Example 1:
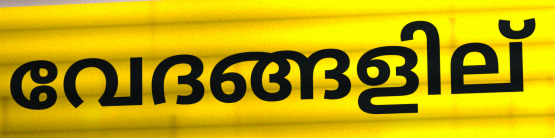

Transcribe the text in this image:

വേദങ്ങളില്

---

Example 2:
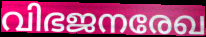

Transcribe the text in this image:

വിഭജനരേഖ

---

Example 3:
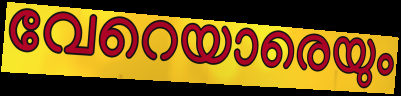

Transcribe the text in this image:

വേറെയാരെയും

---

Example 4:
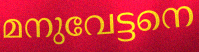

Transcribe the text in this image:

മനുവേട്ടനെ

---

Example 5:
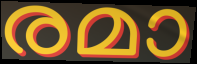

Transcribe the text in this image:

രമാ